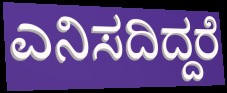
ಎನಿಸದಿದ್ದರೆ